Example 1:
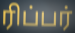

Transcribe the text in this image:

ரிப்பர்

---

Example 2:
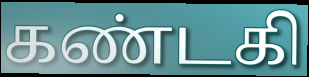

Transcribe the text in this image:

கண்டகி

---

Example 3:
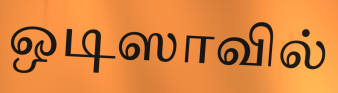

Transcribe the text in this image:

ஒடிஸாவில்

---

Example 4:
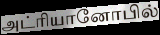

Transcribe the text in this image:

அட்ரியானோபில்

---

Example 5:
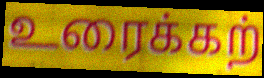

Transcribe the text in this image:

உரைக்கற்